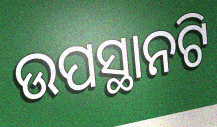
ଉପସ୍ଥାନଟି